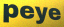
peye